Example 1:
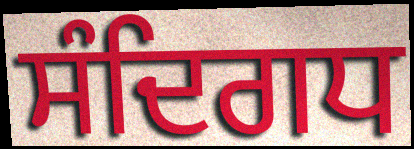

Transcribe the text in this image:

ਸੰਦਿਗਧ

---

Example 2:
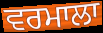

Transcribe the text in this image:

ਵਰਮਾਲਾ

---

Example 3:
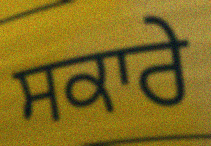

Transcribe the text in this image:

ਸਕਾਰੇ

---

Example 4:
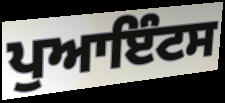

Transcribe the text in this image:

ਪੁਆਇੰਟਸ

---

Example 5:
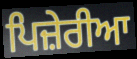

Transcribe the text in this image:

ਪਿਜ਼ੇਰੀਆ